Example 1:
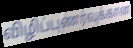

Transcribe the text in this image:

விழிப்புணர்வுக்கான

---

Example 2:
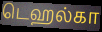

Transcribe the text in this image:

டெஹல்கா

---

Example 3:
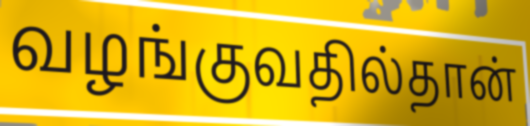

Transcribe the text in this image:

வழங்குவதில்தான்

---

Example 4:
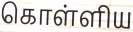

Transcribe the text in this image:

கொள்ளிய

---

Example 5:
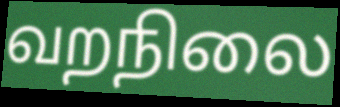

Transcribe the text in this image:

வறநிலை